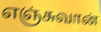
எஞ்சுவான்